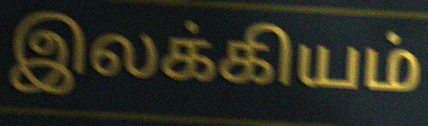
இலக்கியம்